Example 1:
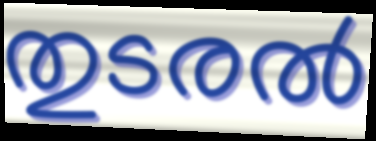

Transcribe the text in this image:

തുടരൽ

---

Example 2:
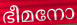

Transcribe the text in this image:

ഭീമനോ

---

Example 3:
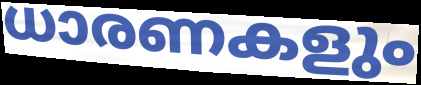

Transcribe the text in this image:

ധാരണകളും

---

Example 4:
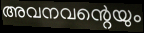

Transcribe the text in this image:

അവനവന്റെയും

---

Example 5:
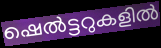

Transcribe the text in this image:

ഷെൽട്ടറുകളിൽ